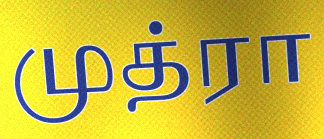
முத்ரா